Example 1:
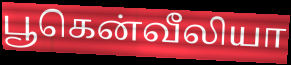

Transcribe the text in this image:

பூகென்வீலியா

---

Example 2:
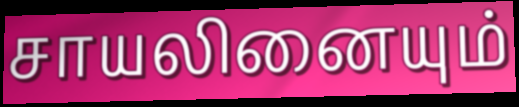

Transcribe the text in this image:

சாயலினையும்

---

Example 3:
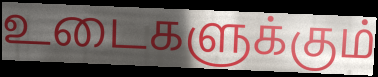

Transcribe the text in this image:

உடைகளுக்கும்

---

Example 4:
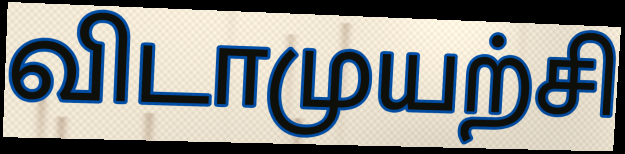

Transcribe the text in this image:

விடாமுயற்சி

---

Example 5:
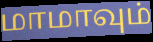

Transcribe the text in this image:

மாமாவும்